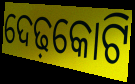
ଦେଢ଼କୋଟି